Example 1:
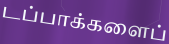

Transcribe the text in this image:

டப்பாக்களைப்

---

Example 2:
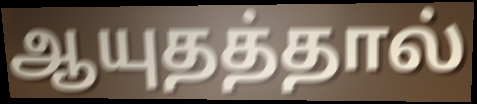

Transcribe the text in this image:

ஆயுதத்தால்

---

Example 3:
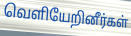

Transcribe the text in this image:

வெளியேறினீர்கள்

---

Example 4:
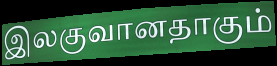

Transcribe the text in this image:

இலகுவானதாகும்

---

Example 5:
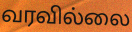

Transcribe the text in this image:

வரவில்லை